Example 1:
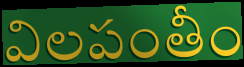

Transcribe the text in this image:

విలపంతీం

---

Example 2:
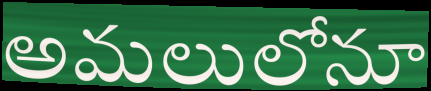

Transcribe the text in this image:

అమలులోనూ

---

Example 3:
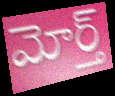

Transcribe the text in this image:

మోర్త్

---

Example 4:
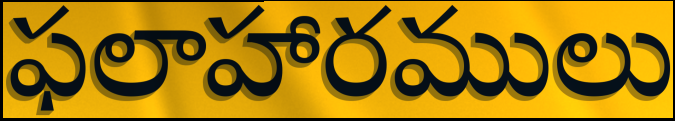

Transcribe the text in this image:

ఫలాహారములు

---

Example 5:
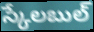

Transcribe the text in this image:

స్కేలబుల్